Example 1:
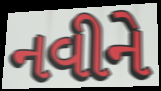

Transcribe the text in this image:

નવીને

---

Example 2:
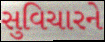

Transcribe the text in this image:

સુવિચારને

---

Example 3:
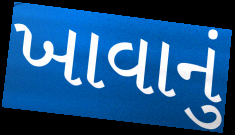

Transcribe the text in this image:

ખાવાનું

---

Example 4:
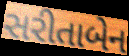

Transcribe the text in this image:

સરીતાબેન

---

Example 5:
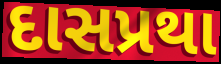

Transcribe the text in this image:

દાસપ્રથા